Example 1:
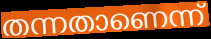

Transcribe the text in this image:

തന്നതാണെന്ന്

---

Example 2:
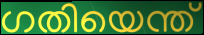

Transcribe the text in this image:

ഗതിയെന്ത്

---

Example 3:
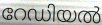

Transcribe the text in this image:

റേഡിയൽ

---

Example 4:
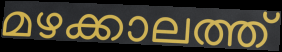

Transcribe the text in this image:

മഴക്കാലത്ത്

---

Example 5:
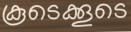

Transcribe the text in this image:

കൂടെക്കൂടെ